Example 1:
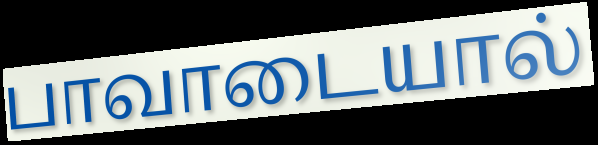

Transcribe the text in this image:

பாவாடையால்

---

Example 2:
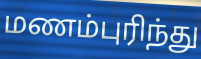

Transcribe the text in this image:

மணம்புரிந்து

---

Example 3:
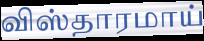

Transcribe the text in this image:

விஸ்தாரமாய்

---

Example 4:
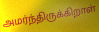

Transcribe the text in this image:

அமர்ந்திருக்கிறாள்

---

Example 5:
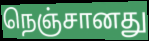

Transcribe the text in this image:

நெஞ்சானது